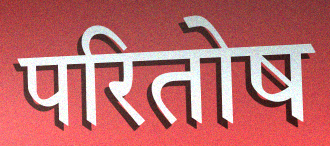
परितोष